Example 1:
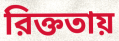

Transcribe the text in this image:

রিক্ততায়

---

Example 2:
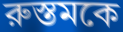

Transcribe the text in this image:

রুস্তমকে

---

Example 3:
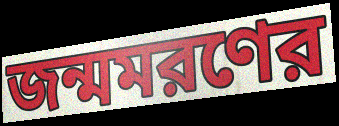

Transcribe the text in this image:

জন্মমরণের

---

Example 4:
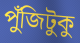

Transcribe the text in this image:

পুঁজিটুকু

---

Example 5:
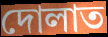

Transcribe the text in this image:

দোলাত